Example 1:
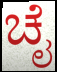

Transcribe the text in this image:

ಚೈ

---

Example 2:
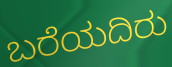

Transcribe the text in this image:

ಬರೆಯದಿರು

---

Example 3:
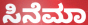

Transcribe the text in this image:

ಸಿನೆಮಾ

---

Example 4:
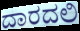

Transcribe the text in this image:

ದಾರದಲಿ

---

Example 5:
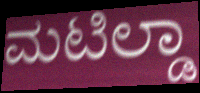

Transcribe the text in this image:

ಮಟಿಲ್ಡಾ